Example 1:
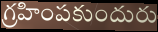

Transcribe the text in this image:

గ్రహింపకుందురు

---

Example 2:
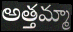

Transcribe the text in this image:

అత్తమ్మా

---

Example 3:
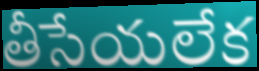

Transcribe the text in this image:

తీసేయలేక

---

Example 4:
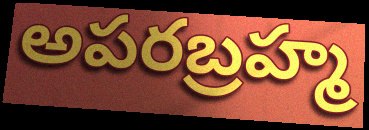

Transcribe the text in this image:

అపరబ్రహ్మ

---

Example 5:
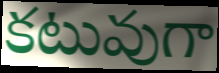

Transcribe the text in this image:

కటువుగా